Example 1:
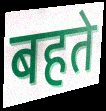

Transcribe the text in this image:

बहते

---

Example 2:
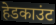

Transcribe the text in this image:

हेडकाउंट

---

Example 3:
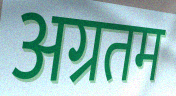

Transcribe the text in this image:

अग्रतम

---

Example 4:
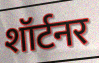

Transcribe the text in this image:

शॉर्टनर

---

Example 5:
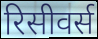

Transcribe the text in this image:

रिसीवर्स